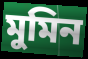
মুমিন